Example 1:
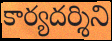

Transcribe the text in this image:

కార్యదర్శిని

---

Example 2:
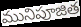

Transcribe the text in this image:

మునిపూజిత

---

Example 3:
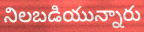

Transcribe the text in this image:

నిలబడియున్నారు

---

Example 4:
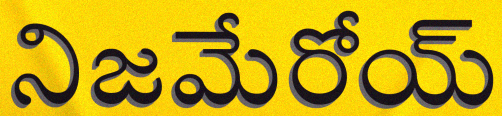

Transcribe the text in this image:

నిజమేరోయ్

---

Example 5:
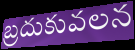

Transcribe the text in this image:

బ్రదుకువలన